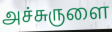
அச்சுருளை